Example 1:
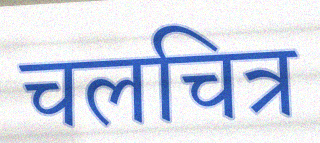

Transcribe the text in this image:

चलचित्र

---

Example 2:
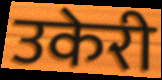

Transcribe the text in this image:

उकेरी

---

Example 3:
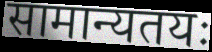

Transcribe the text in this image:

सामान्यतयः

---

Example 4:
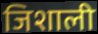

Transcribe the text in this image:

जिशाली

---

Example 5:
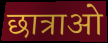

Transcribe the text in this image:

छात्राओ